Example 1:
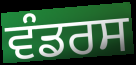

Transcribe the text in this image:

ਵੰਡਰਸ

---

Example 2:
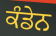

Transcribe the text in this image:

ਕੰਡੇਨ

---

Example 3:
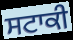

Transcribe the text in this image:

ਸਟਾਕੀ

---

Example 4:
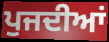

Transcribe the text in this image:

ਪੁਜਦੀਆਂ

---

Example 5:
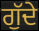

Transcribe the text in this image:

ਗੁੱਦੇ